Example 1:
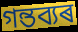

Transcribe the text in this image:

গন্তব্যৰ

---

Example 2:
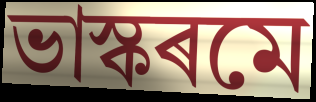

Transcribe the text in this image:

ভাস্কৰমে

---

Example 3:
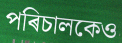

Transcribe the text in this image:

পৰিচালকেও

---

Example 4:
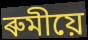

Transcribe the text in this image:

ৰুমীয়ে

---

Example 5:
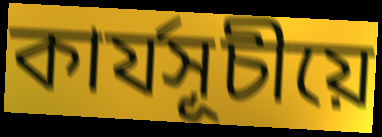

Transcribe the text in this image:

কাৰ্যসূচীয়ে